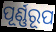
ପୂର୍ଣ୍ଣରୂପ